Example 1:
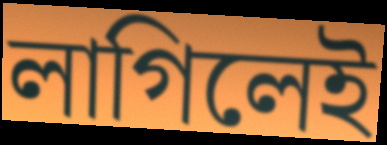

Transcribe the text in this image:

লাগিলেই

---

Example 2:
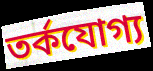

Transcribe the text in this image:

তর্কযোগ্য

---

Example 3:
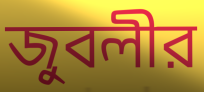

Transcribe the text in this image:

জুবলীর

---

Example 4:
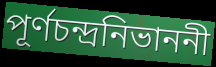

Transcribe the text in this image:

পূর্ণচন্দ্রনিভাননী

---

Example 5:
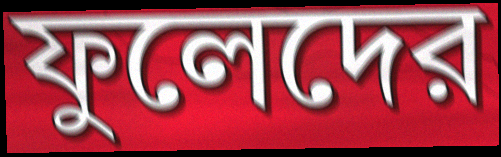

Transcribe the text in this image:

ফুলেদের